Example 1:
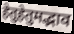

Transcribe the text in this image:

हेतुहेतुमद्भाव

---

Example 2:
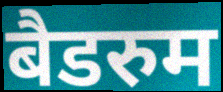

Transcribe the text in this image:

बैडरुम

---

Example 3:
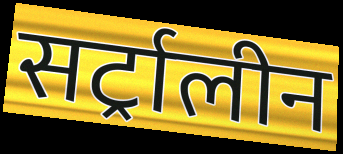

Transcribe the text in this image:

सर्ट्रालीन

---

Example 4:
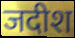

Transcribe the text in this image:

जदीश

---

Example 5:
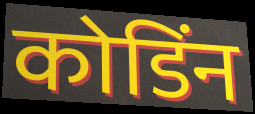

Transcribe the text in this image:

कोडिंन